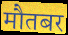
मौतबर